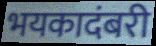
भयकादंबरी